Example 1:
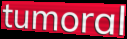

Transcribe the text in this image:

tumoral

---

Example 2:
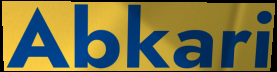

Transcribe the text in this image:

Abkari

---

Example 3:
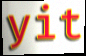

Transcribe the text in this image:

yit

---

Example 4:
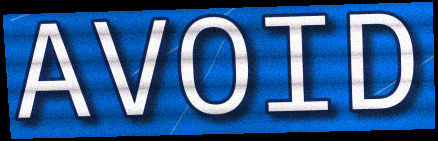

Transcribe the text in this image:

AVOID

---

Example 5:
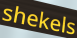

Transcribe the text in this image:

shekels